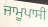
ਜਾਮੂਪਾਸੀ